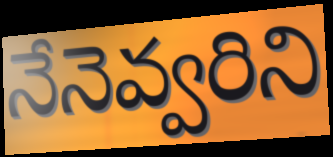
నేనెవ్వరిని